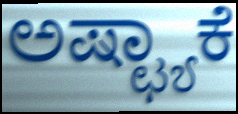
ಅಷ್ಟ್ಯಾಕೆ